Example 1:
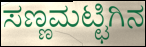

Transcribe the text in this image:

ಸಣ್ಣಮಟ್ಟಿಗಿನ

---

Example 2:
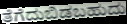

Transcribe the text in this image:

ತೆಗೆದುಬಿಡಬಹುದು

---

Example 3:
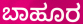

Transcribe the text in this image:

ಬಾಹೂರ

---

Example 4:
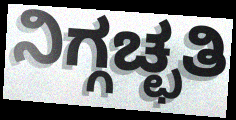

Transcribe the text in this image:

ನಿಗ್ಗಚ್ಛತಿ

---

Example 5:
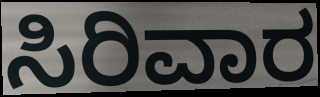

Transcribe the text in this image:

ಸಿರಿವಾರ